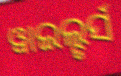
ୱାଇଲ୍ଡର୍ସ